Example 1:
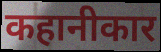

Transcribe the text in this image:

कहानीकार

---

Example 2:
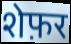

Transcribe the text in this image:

शेफ़र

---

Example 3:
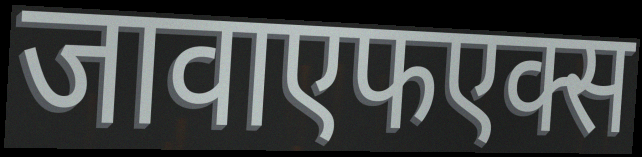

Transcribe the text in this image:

जावाएफएक्स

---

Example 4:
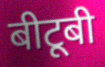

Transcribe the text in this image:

बीटूबी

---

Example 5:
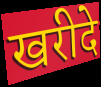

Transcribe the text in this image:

खरीदे